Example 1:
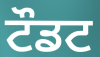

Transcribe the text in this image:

ਟੌਡਟ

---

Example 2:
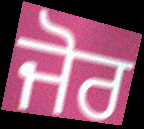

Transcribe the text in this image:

ਜੋਰ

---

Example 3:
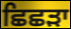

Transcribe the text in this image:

ਛਿਛੜਾ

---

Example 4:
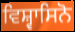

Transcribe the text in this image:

ਵਿਸ਼੍ਵਾਸਿਨੋ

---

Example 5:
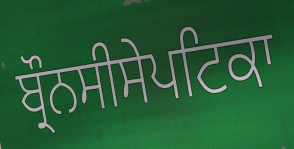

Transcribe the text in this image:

ਬ੍ਰੌਨਸੀਸੇਪਟਿਕਾ